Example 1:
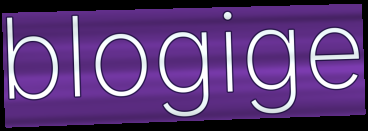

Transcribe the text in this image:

blogige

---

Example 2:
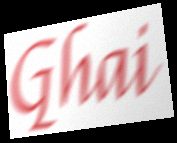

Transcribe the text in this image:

Ghai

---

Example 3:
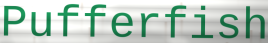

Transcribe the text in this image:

Pufferfish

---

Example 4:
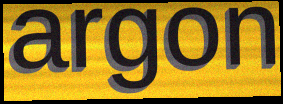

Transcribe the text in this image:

argon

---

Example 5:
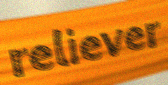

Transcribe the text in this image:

reliever